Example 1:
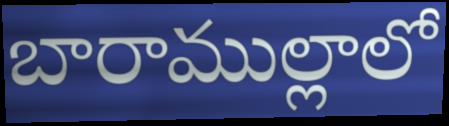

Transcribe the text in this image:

బారాముల్లాలో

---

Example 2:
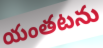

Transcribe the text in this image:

యంతటను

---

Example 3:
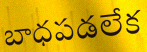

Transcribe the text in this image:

బాధపడలేక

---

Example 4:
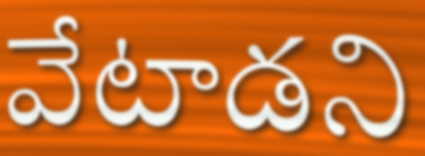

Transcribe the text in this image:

వేటాడని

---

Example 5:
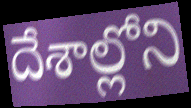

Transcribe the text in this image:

దేశాల్లోని